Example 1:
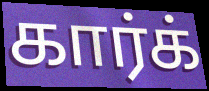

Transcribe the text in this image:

கார்க்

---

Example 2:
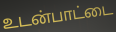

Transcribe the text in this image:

உடன்பாட்டை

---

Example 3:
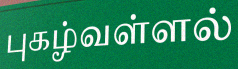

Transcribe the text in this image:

புகழ்வள்ளல்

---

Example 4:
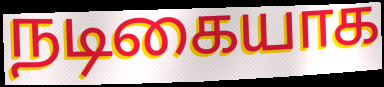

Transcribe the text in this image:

நடிகையாக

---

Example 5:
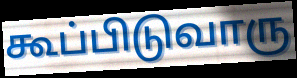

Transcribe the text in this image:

கூப்பிடுவாரு